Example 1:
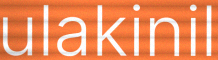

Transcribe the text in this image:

ulakinil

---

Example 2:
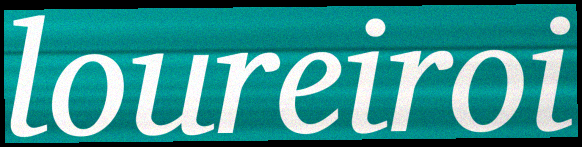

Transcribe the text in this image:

loureiroi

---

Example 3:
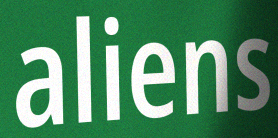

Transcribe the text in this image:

aliens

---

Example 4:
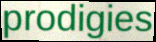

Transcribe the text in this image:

prodigies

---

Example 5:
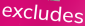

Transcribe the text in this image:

excludes